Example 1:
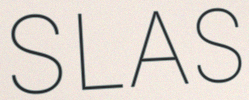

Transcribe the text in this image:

SLAS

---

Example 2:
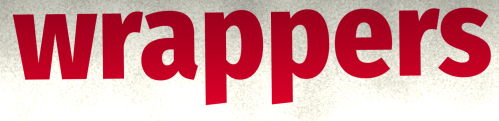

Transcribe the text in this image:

wrappers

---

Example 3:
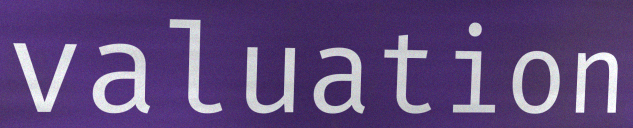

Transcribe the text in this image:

valuation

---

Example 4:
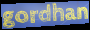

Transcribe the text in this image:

gordhan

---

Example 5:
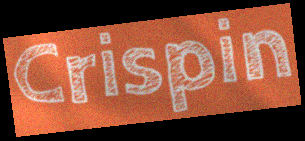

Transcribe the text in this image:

Crispin